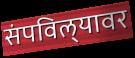
संपविल्यावर